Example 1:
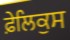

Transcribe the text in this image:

ਫ਼ੇਲਿਕੁਸ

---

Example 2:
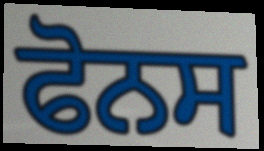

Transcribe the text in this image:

ਫੋਨਸ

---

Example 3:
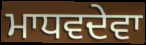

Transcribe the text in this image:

ਮਾਧਵਦੇਵਾ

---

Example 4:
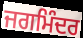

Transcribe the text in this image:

ਜਗਮਿੰਦਰ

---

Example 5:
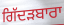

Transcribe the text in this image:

ਗਿੱਦੜਬਾਰਾ